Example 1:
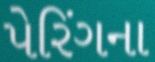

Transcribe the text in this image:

પેરિંગના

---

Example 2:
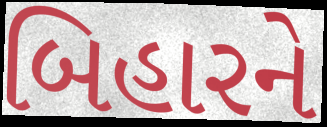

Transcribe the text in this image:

બિહારને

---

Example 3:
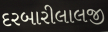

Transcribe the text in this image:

દરબારીલાલજી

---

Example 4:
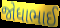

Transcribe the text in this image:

જોધાભાઈ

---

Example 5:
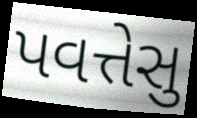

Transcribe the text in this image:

પવત્તેસુ